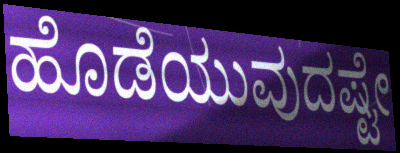
ಹೊಡೆಯುವುದಷ್ಟೇ